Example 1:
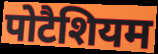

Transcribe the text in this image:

पोटैशियम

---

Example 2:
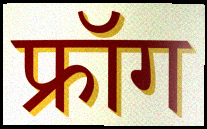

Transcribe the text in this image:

फ्रॉग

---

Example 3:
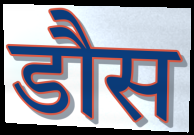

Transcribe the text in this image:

डौस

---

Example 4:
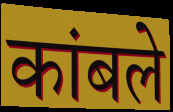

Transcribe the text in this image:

कांबले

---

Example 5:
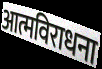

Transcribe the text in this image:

आत्मविराधना